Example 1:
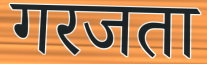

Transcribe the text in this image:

गरजता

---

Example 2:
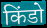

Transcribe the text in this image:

किंडो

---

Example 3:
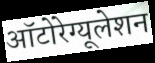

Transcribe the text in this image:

ऑटोरेग्यूलेशन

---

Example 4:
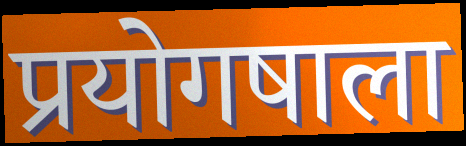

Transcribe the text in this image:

प्रयोगषाला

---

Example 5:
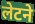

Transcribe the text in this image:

लेटने